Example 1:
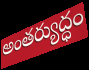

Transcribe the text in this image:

అంతర్యుద్ధం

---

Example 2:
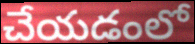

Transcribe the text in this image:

చేయడంలో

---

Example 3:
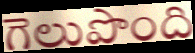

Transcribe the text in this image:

గెలుపొంది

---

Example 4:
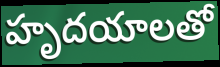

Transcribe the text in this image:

హృదయాలతో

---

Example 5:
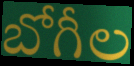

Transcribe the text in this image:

బోగీల